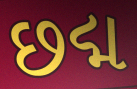
છદ્મ